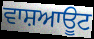
ਵਾਸ਼ਆਊਟ